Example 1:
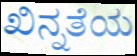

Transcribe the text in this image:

ಖಿನ್ನತೆಯ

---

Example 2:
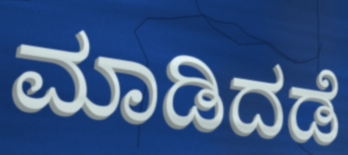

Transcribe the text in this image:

ಮಾಡಿದಡೆ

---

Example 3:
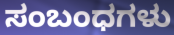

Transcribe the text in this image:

ಸಂಬಂಧಗಳು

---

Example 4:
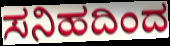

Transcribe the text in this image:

ಸನಿಹದಿಂದ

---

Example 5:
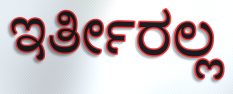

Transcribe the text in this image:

ಇರ್ತೀರಲ್ಲ